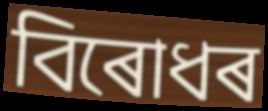
বিৰোধৰ